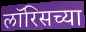
लॉरिसच्या